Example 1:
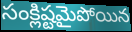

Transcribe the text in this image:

సంక్లిష్టమైపోయిన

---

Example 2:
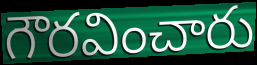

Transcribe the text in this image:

గౌరవించారు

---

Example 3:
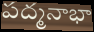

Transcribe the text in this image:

పద్మనాభా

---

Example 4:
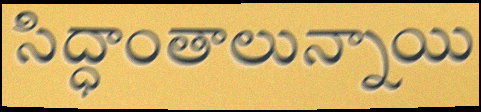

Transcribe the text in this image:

సిద్ధాంతాలున్నాయి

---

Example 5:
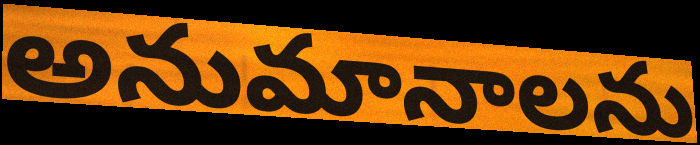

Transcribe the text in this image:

అనుమానాలను